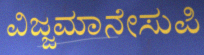
ವಿಜ್ಜಮಾನೇಸುಪಿ